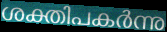
ശക്തിപകർന്നു